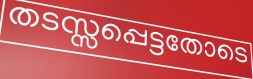
തടസ്സപ്പെട്ടതോടെ